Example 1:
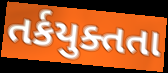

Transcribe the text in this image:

તર્કયુક્તતા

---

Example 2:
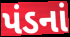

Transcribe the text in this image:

પંડનાં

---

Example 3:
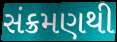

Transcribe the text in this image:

સંક્રમણથી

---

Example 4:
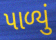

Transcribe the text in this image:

પાળ્યું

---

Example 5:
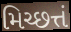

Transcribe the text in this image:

મિચ્છત્તં